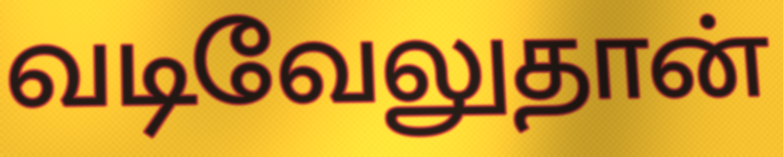
வடிவேலுதான்